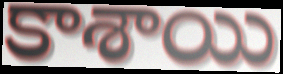
కాశాయి